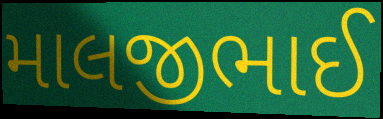
માલજીભાઈ